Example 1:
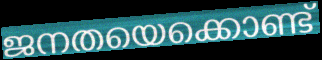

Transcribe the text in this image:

ജനതയെക്കൊണ്ട്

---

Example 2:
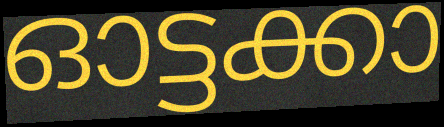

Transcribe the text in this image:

ഓട്ടക്കാ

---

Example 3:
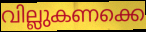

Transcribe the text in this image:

വില്ലുകണക്കെ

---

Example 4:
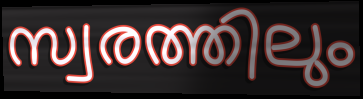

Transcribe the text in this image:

സ്വരത്തിലും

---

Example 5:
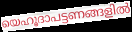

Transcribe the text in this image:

യെഹൂദാപട്ടണങ്ങളിൽ